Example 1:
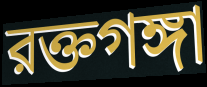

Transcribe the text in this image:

রক্তগঙ্গা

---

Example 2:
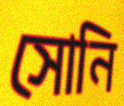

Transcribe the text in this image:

সোনি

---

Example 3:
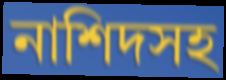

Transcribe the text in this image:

নাশিদসহ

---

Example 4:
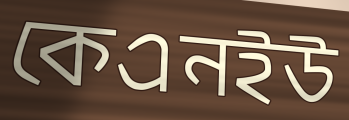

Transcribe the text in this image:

কেএনইউ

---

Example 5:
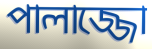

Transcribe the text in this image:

পালাজ্জো